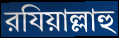
রযিয়াল্লাহু